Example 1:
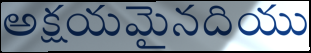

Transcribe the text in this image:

అక్షయమైనదియు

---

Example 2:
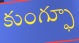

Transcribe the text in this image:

కుంగ్ఫూ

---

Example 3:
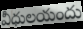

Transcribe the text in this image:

వీధులయందు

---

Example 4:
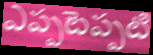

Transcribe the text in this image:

ఎప్పటెప్పటి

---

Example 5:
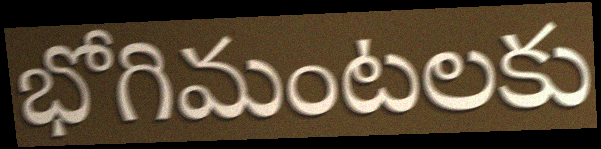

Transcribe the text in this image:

భోగిమంటలకు